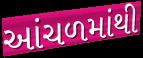
આંચળમાંથી